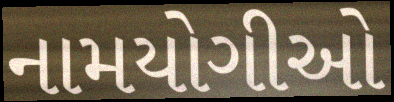
નામયોગીઓ